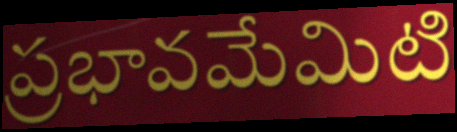
ప్రభావమేమిటి